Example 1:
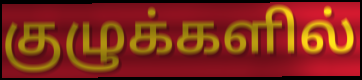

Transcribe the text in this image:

குழுக்களில்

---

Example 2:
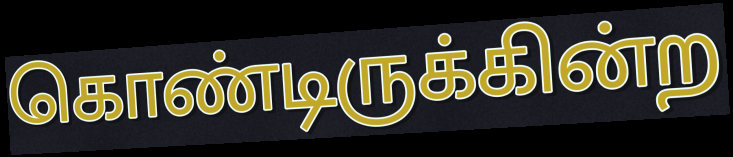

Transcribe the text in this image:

கொண்டிருக்கின்ற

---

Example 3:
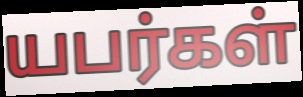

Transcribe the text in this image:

யபர்கள்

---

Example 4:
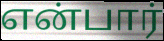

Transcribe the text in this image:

என்பார்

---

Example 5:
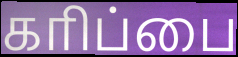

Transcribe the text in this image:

கரிப்பை